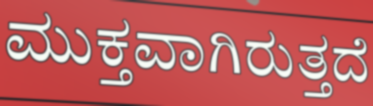
ಮುಕ್ತವಾಗಿರುತ್ತದೆ